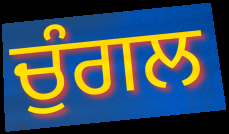
ਚੁੰਗਲ